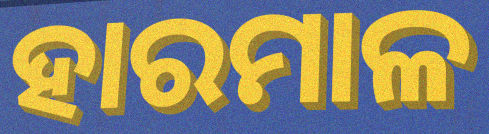
ହାରମାଳ